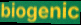
biogenic